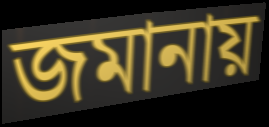
জমানায়